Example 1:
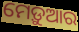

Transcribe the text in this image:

ମେଡ଼ୁଆର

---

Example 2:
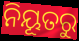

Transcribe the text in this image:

ନିୟୂତରୁ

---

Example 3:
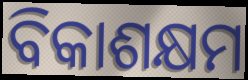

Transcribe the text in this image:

ବିକାଶକ୍ଷମ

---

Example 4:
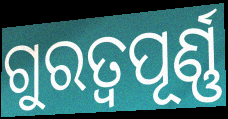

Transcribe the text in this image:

ଗୁରତ୍ୱପୂର୍ଣ୍ଣ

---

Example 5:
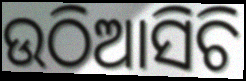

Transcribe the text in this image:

ଉଠିଆସିଚି